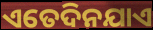
ଏତେଦିନଯାଏ